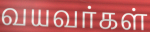
வயவர்கள்